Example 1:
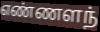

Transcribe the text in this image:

எண்ணளந்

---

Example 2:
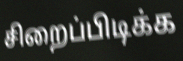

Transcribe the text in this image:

சிறைப்பிடிக்க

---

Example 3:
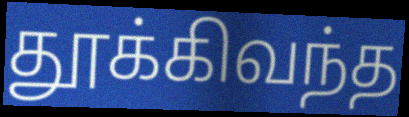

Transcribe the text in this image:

தூக்கிவந்த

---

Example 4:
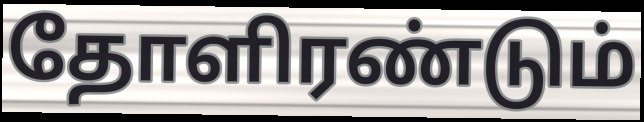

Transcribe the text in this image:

தோளிரண்டும்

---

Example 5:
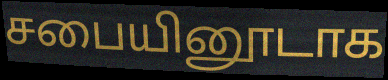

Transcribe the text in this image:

சபையினூடாக